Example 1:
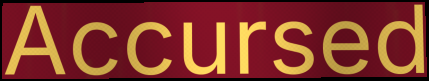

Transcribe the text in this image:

Accursed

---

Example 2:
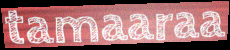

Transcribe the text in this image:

tamaaraa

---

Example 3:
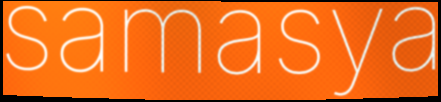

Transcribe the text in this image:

samasya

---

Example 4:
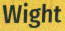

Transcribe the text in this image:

Wight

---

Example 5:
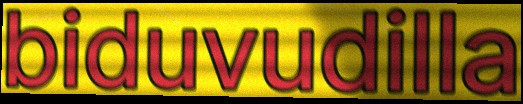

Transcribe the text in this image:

biduvudilla